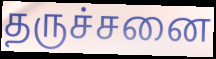
தருச்சனை